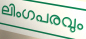
ലിംഗപരവും